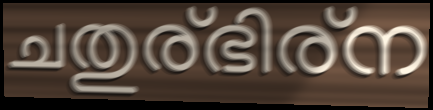
ചതുര്ഭിര്ന